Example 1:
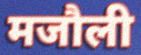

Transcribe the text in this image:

मजौली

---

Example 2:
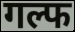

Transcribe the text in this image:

गल्फ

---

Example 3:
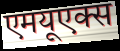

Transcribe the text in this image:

एमयूएक्स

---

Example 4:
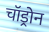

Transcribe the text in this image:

चॉड्रोन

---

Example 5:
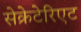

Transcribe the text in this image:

सेक्रेटेरिएट